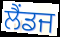
ਲੈਂਡਜ